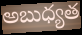
అబుధ్యత